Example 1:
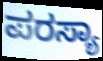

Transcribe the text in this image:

ಪರಸ್ಯಾ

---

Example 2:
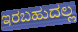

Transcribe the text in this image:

ಇರಬಹುದಲ್ಲ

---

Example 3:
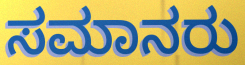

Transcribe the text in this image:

ಸಮಾನರು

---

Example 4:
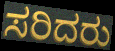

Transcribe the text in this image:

ಸರಿದರು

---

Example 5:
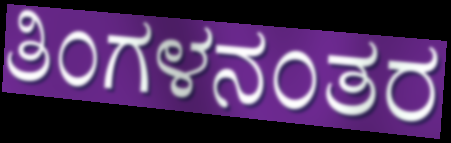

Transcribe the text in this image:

ತಿಂಗಳನಂತರ